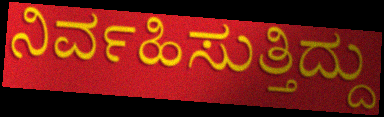
ನಿರ್ವಹಿಸುತ್ತಿದ್ದು